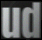
ud